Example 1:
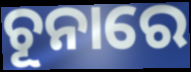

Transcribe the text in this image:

ଚୂନାରେ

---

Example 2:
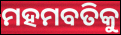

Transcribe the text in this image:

ମହମବତିକୁ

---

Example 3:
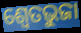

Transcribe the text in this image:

ଶ୍ଵେତଭୁଜା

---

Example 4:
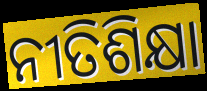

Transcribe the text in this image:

ନୀତିଶିକ୍ଷା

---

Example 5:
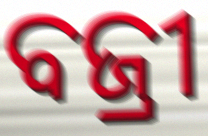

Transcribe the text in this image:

ବଜ୍ରୀ